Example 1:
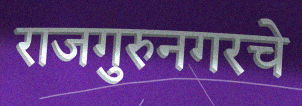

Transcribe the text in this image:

राजगुरुनगरचे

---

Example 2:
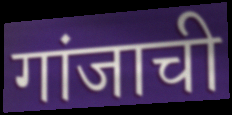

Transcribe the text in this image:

गांजाची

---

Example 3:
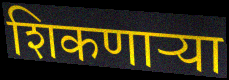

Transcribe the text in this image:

शिकणाऱ्या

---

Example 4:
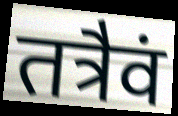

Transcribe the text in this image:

तत्रैवं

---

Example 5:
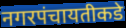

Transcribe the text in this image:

नगरपंचायतीकडे